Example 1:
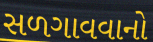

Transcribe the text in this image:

સળગાવવાનો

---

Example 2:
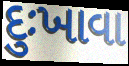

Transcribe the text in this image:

દુઃખાવા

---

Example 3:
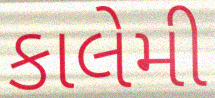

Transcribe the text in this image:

કાલેમી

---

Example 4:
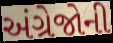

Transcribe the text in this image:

અંગ્રેજોની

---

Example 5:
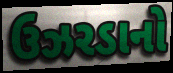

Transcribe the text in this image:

ઉઝરડાનો